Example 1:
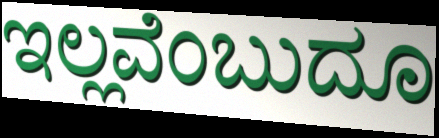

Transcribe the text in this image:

ಇಲ್ಲವೆಂಬುದೂ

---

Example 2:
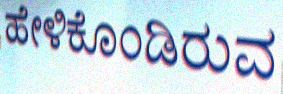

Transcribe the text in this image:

ಹೇಳಿಕೊಂಡಿರುವ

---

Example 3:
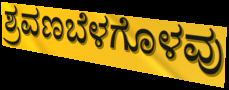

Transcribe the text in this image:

ಶ್ರವಣಬೆಳಗೊಳವು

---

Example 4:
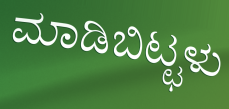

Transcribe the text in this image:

ಮಾಡಿಬಿಟ್ಟಳು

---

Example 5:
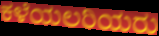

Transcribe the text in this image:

ಕಳೆಯಲರಿಯರು